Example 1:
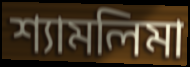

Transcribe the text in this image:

শ্যামলিমা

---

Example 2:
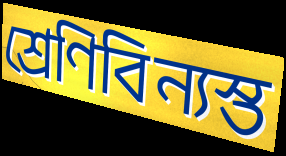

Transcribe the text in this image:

শ্রেণিবিন্যস্ত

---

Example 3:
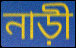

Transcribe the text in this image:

নাড়ী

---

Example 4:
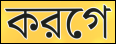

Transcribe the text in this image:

করগে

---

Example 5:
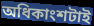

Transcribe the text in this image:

অধিকাংশটাই